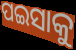
ପଇସାକୁ